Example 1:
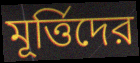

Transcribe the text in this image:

মূর্ত্তিদের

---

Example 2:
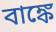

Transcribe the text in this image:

বাঙ্কে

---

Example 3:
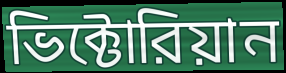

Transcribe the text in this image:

ভিক্টোরিয়ান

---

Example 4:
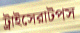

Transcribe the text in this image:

ট্রাইসেরাটপস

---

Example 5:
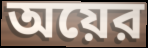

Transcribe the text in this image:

অয়ের